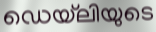
ഡെയ്‌ലിയുടെ